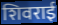
शिवराई